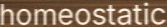
homeostatic